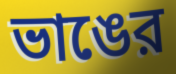
ভাঙের